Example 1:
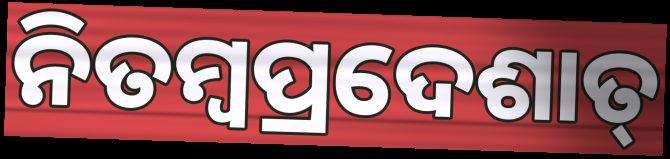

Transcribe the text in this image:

ନିତମ୍ବପ୍ରଦେଶାତ୍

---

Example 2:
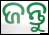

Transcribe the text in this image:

ଜନ୍ତୁ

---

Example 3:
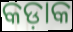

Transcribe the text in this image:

କଡ଼ାକ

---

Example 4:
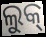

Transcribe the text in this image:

ଲୁକ୍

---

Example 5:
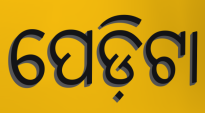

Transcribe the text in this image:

ପେଡ଼ିଟା